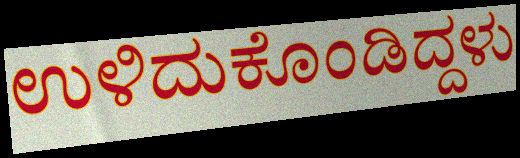
ಉಳಿದುಕೊಂಡಿದ್ದಳು